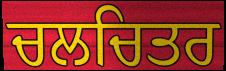
ਚਲਚਿਤਰ